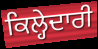
ਕਿਲ੍ਹੇਦਾਰੀ